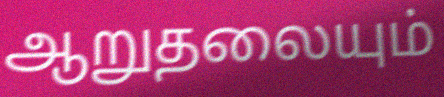
ஆறுதலையும்